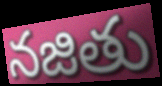
నజితు